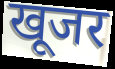
खूजर